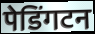
पेडिंगटन